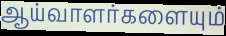
ஆய்வாளர்களையும்